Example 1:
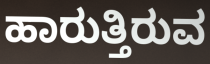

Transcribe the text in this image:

ಹಾರುತ್ತಿರುವ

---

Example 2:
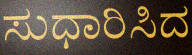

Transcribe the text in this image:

ಸುಧಾರಿಸಿದ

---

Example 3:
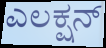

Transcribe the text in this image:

ಎಲಕ್ಷನ್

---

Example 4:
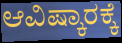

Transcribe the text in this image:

ಆವಿಷ್ಕಾರಕ್ಕೆ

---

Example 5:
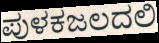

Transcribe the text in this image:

ಪುಳಕಜಲದಲಿ